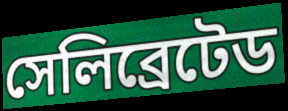
সেলিব্রেটেড